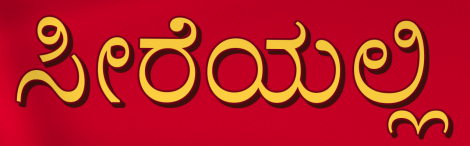
ಸೀರೆಯಲ್ಲಿ